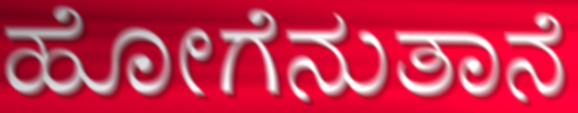
ಹೋಗೆನುತಾನೆ